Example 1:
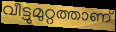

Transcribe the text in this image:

വീട്ടുമുറ്റത്താണ്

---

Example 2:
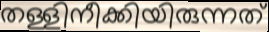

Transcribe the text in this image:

തള്ളിനീക്കിയിരുന്നത്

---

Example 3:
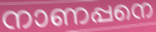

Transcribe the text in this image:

നാണപ്പനെ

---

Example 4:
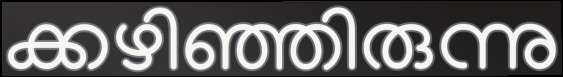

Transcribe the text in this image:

ക്കഴിഞ്ഞിരുന്നു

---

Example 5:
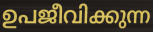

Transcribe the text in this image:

ഉപജീവിക്കുന്ന